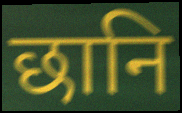
छानि